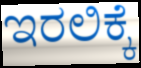
ಇರಲಿಕ್ಕೆ